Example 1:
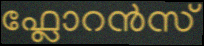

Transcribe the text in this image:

ഫ്ലോറൻസ്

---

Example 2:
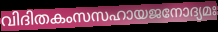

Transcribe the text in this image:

വിദിതകംസസഹായജനോദ്യമഃ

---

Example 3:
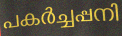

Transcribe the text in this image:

പകർച്ചപ്പനി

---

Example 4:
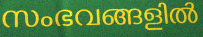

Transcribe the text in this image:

സംഭവങ്ങളിൽ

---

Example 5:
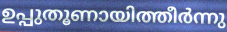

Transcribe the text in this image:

ഉപ്പുതൂണായിത്തീർന്നു